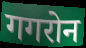
गगरोन